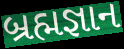
બ્રહ્મજ્ઞાન